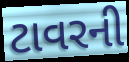
ટાવરની